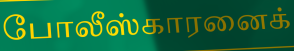
போலீஸ்காரனைக்